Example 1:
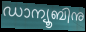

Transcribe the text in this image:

ഡാന്യൂബിനു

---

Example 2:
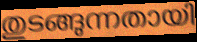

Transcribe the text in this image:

തുടങ്ങുന്നതായി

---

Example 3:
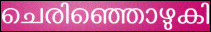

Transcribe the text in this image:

ചെരിഞ്ഞൊഴുകി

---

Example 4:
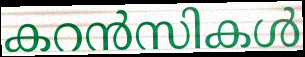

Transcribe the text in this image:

കറൻസികൾ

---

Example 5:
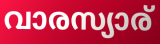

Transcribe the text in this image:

വാരസ്യാര്